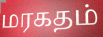
மரகதம்